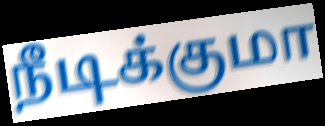
நீடிக்குமா